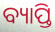
ବ୍ୟାପ୍ତି